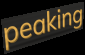
peaking